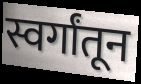
स्वर्गांतून